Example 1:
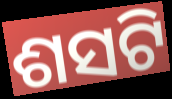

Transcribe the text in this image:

ଶସଟି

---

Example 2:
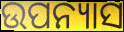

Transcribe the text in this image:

ଉପନ୍ୟାସ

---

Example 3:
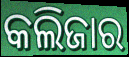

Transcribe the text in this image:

କଲିଜାର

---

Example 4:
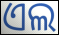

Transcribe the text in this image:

ଏଲ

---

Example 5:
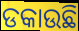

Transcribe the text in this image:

ଡକାଉଛି